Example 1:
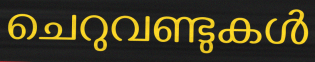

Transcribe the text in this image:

ചെറുവണ്ടുകൾ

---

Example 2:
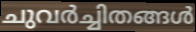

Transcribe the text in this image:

ചുവർച്ചിതങ്ങൾ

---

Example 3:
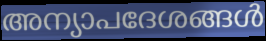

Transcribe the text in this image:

അന്യാപദേശങ്ങൾ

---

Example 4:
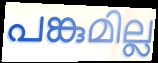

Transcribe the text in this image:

പങ്കുമില്ല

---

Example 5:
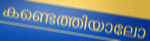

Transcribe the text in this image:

കണ്ടെത്തിയാലോ